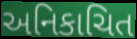
અનિકાચિત